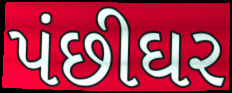
પંછીઘર